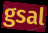
gsal